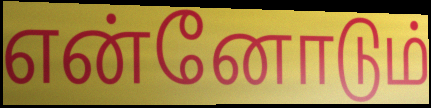
என்னோடும்